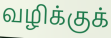
வழிக்குக்